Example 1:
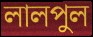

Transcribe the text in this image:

লালপুল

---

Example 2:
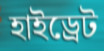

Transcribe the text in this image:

হাইড্রেট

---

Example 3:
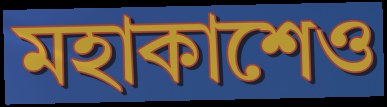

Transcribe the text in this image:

মহাকাশেও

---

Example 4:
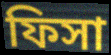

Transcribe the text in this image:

ফিসা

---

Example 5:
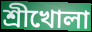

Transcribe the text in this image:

শ্রীখোলা